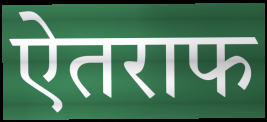
ऐतराफ